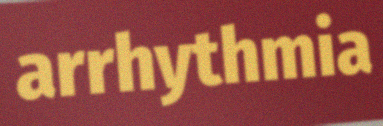
arrhythmia